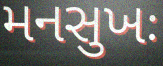
મનસુખઃ